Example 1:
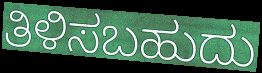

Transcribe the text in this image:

ತಿಳಿಸಬಹುದು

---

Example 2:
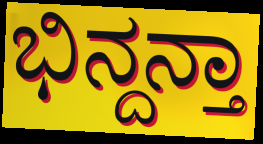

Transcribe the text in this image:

ಭಿನ್ದನ್ತಾ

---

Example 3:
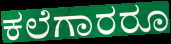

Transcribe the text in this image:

ಕಲೆಗಾರರೂ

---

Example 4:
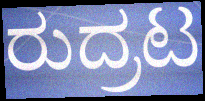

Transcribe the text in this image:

ರುದ್ರಟ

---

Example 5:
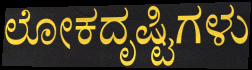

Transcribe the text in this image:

ಲೋಕದೃಷ್ಟಿಗಳು